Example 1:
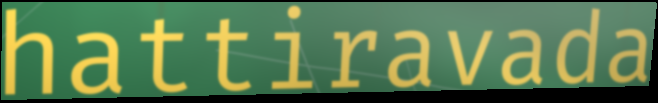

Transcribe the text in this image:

hattiravada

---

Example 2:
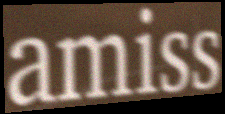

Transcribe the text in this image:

amiss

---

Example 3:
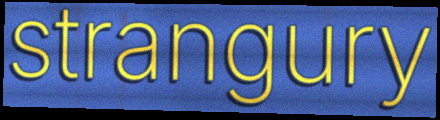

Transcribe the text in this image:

strangury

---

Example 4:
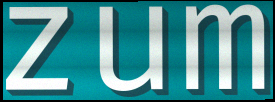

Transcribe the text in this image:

zum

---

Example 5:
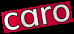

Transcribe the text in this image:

caro